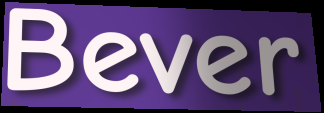
Bever